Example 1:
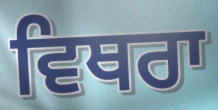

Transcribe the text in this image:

ਵਿਥਰਾ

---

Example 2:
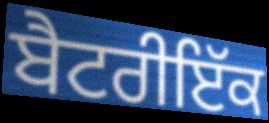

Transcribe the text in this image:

ਬੈਟਰੀਇੱਕ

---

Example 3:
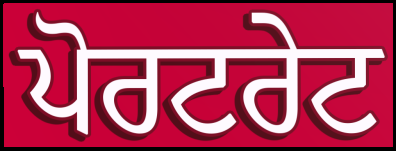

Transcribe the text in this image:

ਪੋਰਟਰੇਟ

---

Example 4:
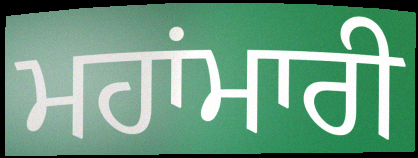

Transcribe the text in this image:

ਮਹਾਂਮਾਰੀ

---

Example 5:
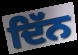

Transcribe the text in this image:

ਦਿੱਨ